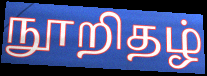
நூறிதழ்